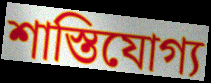
শাস্তিযোগ্য